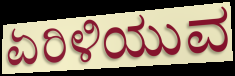
ಏರಿಳಿಯುವ